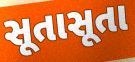
સૂતાસૂતા